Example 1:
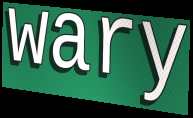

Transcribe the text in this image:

wary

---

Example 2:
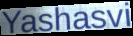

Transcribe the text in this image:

Yashasvi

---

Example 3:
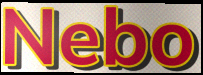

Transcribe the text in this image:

Nebo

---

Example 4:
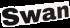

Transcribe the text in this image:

Swan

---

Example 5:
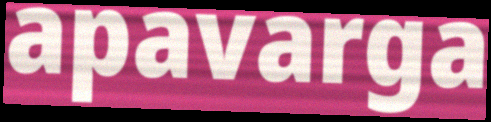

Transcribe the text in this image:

apavarga